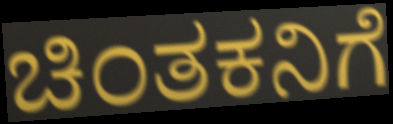
ಚಿಂತಕನಿಗೆ